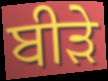
ਬੀੜੇ